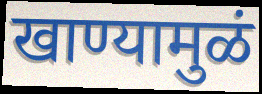
खाण्यामुळं